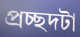
প্রচ্ছদটা